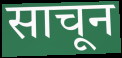
साचून